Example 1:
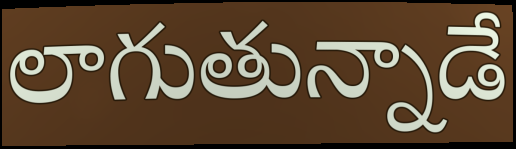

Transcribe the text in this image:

లాగుతున్నాడే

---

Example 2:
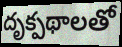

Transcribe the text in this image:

దృక్పథాలతో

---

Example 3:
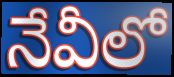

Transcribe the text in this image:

నేవీలో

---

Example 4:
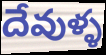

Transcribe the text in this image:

దేవుళ్ళ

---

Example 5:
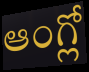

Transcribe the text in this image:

ఆంగ్లో